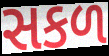
સકળ